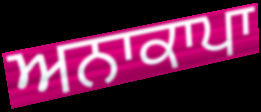
ਅਨਾਕਾਪਾ